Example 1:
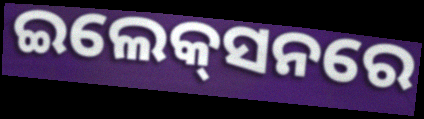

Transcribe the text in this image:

ଇଲେକ୍‍ସନରେ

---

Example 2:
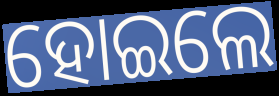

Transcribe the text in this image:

ହୋଇଲେ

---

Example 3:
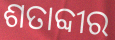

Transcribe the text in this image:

ଶତାବ୍ଦୀର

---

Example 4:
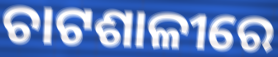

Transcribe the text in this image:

ଚାଟଶାଳୀରେ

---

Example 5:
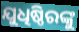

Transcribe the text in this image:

ଯୁଧିଷ୍ଠିରଙ୍କୁ